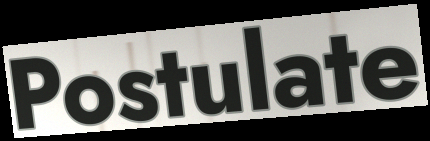
Postulate